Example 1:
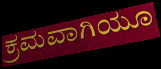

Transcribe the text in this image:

ಕ್ರಮವಾಗಿಯೂ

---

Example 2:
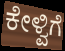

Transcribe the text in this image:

ಕೇಳ್ವಿಗೆ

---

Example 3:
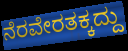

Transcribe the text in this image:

ನೆರವೇರತಕ್ಕದ್ದು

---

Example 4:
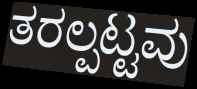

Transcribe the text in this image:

ತರಲ್ಪಟ್ಟವು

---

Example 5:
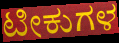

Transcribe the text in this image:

ಟೀಕುಗಳ